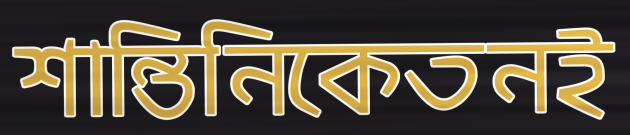
শান্তিনিকেতনই